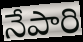
నేపారి